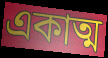
একাত্ম